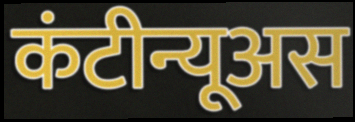
कंटीन्यूअस